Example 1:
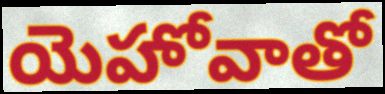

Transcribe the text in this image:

యెహోవాతో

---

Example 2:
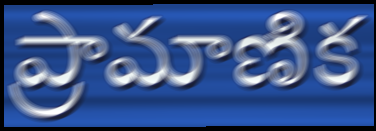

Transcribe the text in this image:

ప్రామాణిక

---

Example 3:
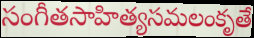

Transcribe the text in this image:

సంగీతసాహిత్యసమలంకృతే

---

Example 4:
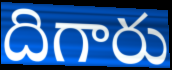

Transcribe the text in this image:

దిగారు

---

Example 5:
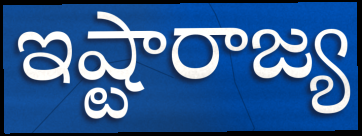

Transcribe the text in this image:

ఇష్టారాజ్య